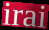
irai